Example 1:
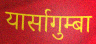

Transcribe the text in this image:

यार्सागुम्बा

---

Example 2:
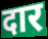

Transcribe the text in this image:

दार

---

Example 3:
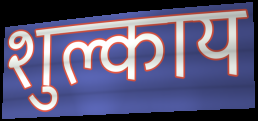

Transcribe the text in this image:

शुल्काय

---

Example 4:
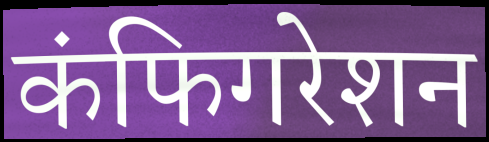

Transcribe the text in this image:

कंफिगरेशन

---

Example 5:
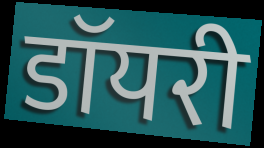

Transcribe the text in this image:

डॉयरी